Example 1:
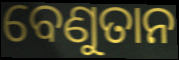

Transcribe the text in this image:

ବେଣୁତାନ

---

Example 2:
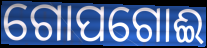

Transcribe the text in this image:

ଗୋପଗୋଈ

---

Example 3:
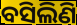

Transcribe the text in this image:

ବସିଲିଣି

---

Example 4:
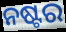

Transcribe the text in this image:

ନଷ୍ଟର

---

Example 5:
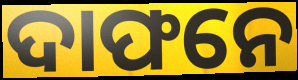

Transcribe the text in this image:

ଦାଫନେ